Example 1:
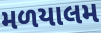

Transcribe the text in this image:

મળયાલમ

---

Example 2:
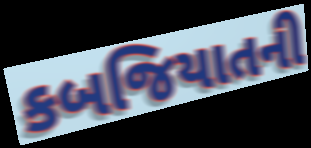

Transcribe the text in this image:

કબજિયાતની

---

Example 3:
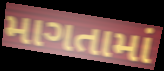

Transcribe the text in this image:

માગતામાં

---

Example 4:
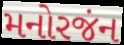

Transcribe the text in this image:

મનોરજંન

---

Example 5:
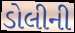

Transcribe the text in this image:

ડોલીની